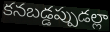
కనబడ్డప్పుడల్లా